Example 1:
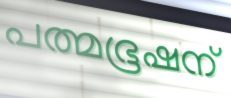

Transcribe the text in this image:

പത്മഭൂഷന്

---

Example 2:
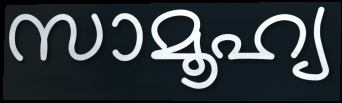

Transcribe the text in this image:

സാമൂഹ്യ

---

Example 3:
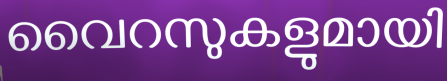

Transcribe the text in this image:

വൈറസുകളുമായി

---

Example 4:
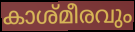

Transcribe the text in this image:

കാശ്മീരവും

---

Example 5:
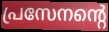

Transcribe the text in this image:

പ്രസേനന്റെ